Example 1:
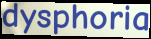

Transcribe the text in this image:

dysphoria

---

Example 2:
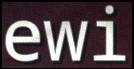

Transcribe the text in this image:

ewi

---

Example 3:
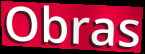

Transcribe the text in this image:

Obras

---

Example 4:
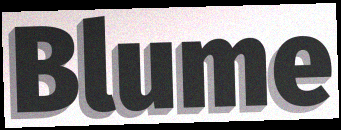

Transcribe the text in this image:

Blume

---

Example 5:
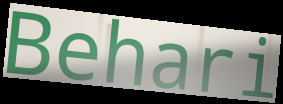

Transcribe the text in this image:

Behari